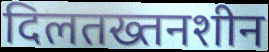
दिलतख्तनशीन